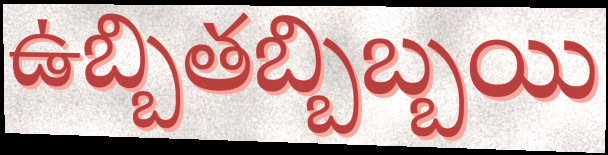
ఉబ్బితబ్బిబ్బయి